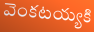
వెంకటయ్యకి